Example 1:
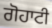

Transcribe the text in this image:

ਗੋਹਾਟੀ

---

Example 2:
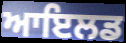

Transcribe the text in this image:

ਆਇਲਡ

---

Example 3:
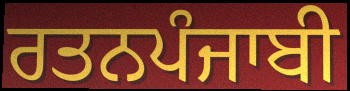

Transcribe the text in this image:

ਰਤਨਪੰਜਾਬੀ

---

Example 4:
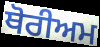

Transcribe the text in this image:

ਥੋਰੀਅਮ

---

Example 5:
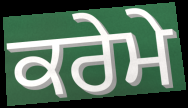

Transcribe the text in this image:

ਕਰੇਮੇ